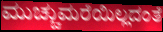
ಮುಚ್ಚುಮರೆಯಿಲ್ಲದಂತೆ